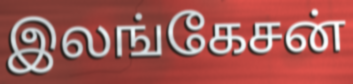
இலங்கேசன்